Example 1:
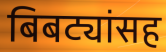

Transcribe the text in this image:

बिबट्यांसह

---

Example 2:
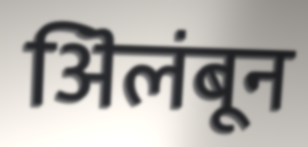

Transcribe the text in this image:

ऄिलंबून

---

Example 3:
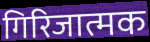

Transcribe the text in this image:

गिरिजात्मक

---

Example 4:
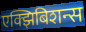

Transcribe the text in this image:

एक्झिबिशन्स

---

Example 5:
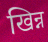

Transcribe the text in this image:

खिन्न